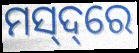
ମସ୍‌ଦ୍‌ରେ